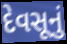
દેવસૂનું